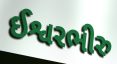
ઈશ્વરભીરુ